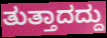
ತುತ್ತಾದದ್ದು